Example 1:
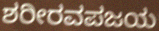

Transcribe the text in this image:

ಶರೀರವಪಜಯ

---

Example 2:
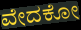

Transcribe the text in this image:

ವೇದಕೋ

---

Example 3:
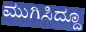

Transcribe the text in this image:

ಮುಗಿಸಿದ್ದೂ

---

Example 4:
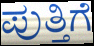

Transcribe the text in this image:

ಪುತ್ತಿಗೆ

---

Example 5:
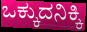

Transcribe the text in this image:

ಒಕ್ಕುದನಿಕ್ಕಿ